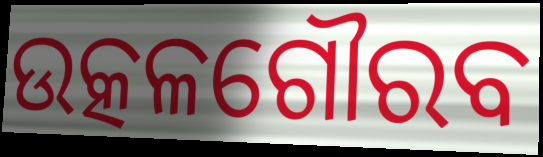
ଉତ୍କଳଗୌରବ